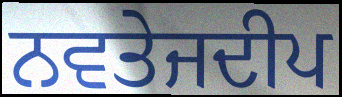
ਨਵਤੇਜਦੀਪ